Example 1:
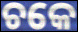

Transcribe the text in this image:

ଚକେ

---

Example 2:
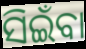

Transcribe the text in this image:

ସିଇଁବା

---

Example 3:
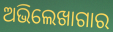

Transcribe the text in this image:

ଅଭିଲେଖାଗାର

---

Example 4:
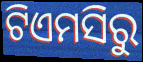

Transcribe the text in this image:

ଟିଏମସିରୁ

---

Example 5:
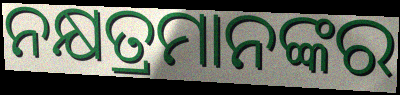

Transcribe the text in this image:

ନକ୍ଷତ୍ରମାନଙ୍କର